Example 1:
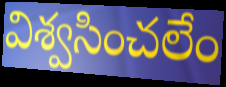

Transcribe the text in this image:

విశ్వసించలేం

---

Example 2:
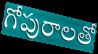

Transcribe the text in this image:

గోపురాలతో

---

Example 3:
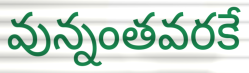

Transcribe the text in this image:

వున్నంతవరకే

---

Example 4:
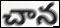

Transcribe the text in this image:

చాన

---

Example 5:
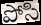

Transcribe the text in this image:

పోసి